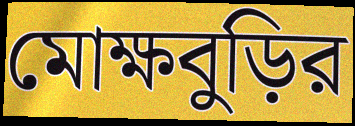
মোক্ষবুড়ির